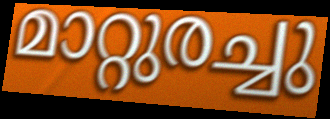
മാറ്റുരച്ചു